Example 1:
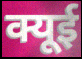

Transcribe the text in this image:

क्यूई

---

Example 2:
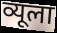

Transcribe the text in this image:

व्यूला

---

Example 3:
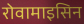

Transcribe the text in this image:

रोवामाइसिन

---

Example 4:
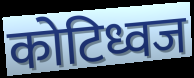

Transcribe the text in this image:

कोटिध्वज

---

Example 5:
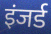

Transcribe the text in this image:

इंजर्ड